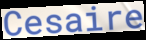
Cesaire